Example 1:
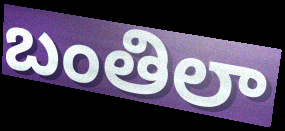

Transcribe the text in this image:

బంతిలా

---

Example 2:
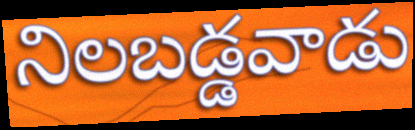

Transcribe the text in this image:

నిలబడ్డవాడు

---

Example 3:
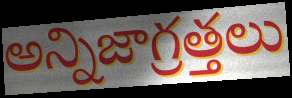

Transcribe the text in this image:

అన్నిజాగ్రత్తలు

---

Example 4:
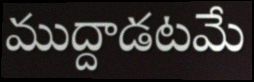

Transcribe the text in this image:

ముద్దాడటమే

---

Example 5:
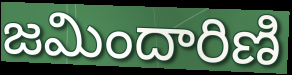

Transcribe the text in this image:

జమిందారిణి